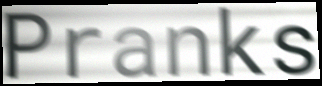
Pranks